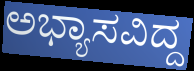
ಅಭ್ಯಾಸವಿದ್ದ